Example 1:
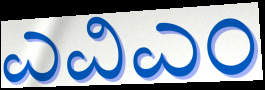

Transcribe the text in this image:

ಎವಿಎಂ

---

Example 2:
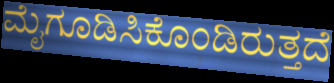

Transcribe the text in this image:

ಮೈಗೂಡಿಸಿಕೊಂಡಿರುತ್ತದೆ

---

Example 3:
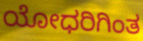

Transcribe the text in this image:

ಯೋಧರಿಗಿಂತ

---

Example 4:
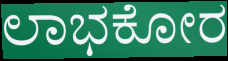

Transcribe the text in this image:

ಲಾಭಕೋರ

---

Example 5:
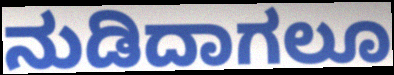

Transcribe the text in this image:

ನುಡಿದಾಗಲೂ